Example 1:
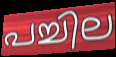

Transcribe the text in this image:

പച്ചില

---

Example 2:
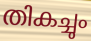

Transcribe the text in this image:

തികച്ചും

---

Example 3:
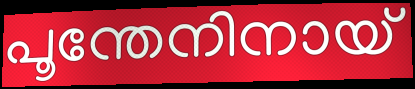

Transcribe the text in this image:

പൂന്തേനിനായ്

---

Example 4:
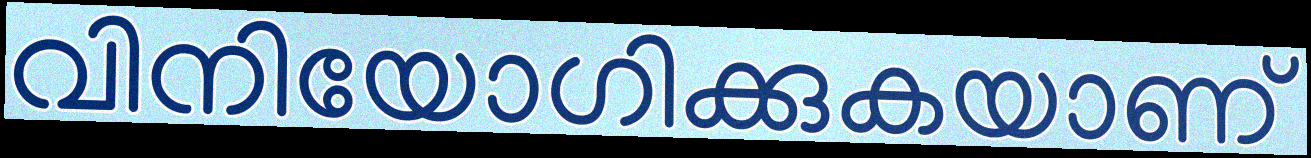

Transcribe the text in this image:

വിനിയോഗിക്കുകയാണ്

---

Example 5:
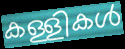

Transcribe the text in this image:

കള്ളികൾ